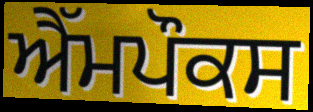
ਐੱਮਪੌਕਸ